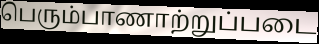
பெரும்பாணாற்றுப்படை